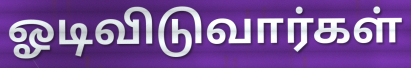
ஓடிவிடுவார்கள்